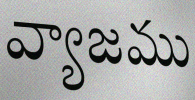
వ్యాజము